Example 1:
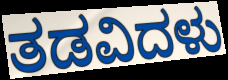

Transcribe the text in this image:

ತಡವಿದಳು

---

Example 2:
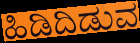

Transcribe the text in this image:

ಹಿಡಿದಿಡುವ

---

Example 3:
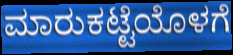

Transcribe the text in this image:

ಮಾರುಕಟ್ಟೆಯೊಳಗೆ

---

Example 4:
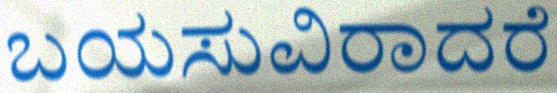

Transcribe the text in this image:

ಬಯಸುವಿರಾದರೆ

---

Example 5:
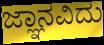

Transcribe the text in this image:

ಜ್ಞಾನವಿದು